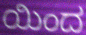
ಯಿಂದ